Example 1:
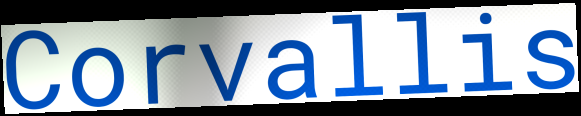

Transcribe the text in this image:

Corvallis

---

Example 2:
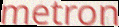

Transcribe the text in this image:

metron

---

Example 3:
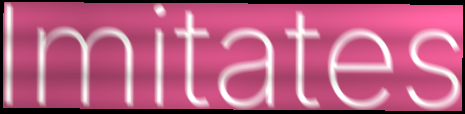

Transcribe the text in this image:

Imitates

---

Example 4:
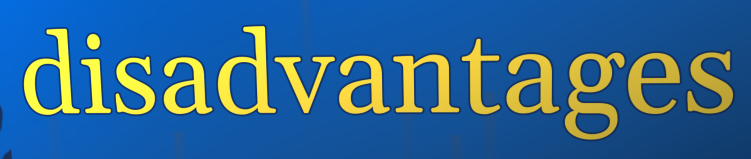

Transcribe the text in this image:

disadvantages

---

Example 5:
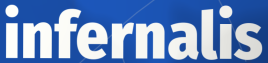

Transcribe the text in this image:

infernalis